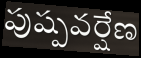
పుష్పవర్షేణ